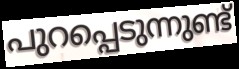
പുറപ്പെടുന്നുണ്ട്